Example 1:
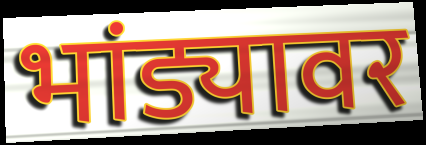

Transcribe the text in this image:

भांड्यावर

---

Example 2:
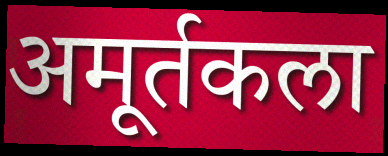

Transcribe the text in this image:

अमूर्तकला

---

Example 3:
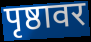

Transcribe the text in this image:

पृष्ठावर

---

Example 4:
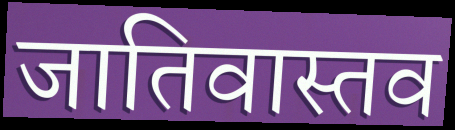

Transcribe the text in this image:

जातिवास्तव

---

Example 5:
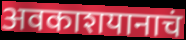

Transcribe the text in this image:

अवकाशयानाचं